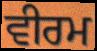
ਵੀਰਮ